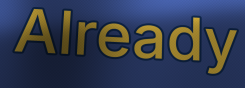
Already